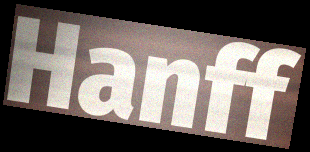
Hanff